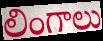
లింగాలు